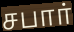
சபார்